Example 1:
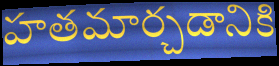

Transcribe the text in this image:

హతమార్చడానికి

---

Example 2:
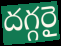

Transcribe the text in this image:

దగ్గరై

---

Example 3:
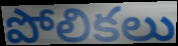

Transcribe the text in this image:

పోలికలు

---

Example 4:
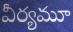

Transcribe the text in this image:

వీర్యమూ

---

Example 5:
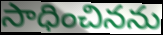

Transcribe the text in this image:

సాధించినను